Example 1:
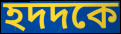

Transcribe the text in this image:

হদদকে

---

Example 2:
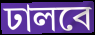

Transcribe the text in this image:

ঢালবে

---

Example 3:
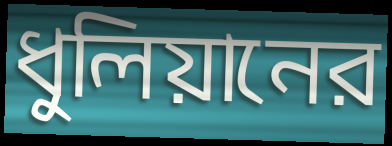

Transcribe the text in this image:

ধুলিয়ানের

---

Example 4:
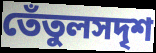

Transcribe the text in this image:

তেঁতুলসদৃশ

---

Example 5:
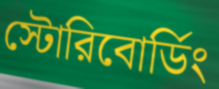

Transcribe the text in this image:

স্টোরিবোর্ডিং